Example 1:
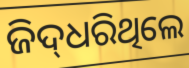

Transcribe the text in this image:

ଜିଦ୍‌ଧରିଥିଲେ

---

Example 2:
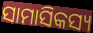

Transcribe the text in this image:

ସାମାସିକସ୍ୟ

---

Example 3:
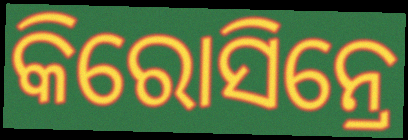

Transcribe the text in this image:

କିରୋସିନ୍ରେ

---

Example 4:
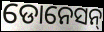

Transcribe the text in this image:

ଡୋନେସନ୍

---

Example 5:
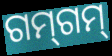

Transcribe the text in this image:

ଗମ୍‍ଗମ୍